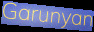
Garunyan